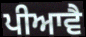
ਪੀਆਵੈ